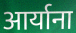
आर्याना